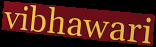
vibhawari